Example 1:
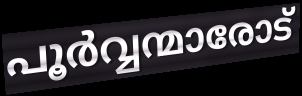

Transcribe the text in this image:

പൂർവ്വന്മാരോട്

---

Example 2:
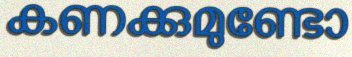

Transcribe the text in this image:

കണക്കുമുണ്ടോ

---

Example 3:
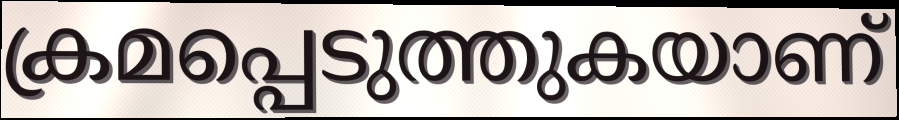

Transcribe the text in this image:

ക്രമപ്പെടുത്തുകയാണ്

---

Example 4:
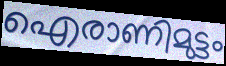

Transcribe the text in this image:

ഐരാണിമുട്ടം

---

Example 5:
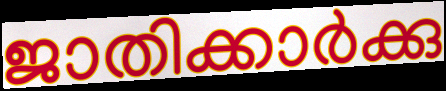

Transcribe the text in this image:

ജാതിക്കാർക്കു